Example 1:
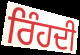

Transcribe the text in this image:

ਰਿੰਹਦੀ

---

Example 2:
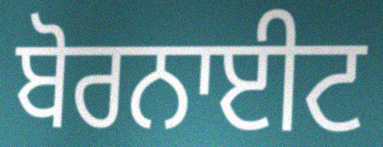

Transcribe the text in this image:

ਬੋਰਨਾਈਟ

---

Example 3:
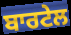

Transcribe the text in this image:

ਬਾਰਟੇਲ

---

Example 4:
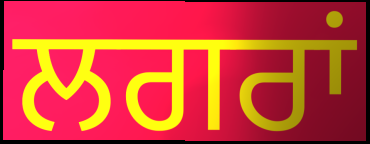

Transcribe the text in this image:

ਲਗਰਾਂ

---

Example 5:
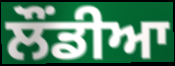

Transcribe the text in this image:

ਲੌਂਡੀਆ